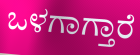
ಒಳಗಾಗ್ತಾರೆ